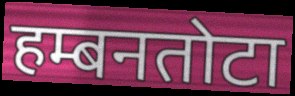
हम्बनतोटा